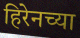
हिरेनच्या